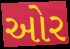
ઓર